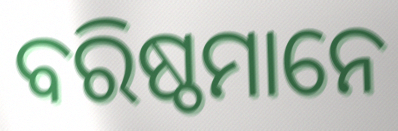
ବରିଷ୍ଠମାନେ